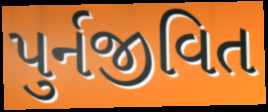
પુર્નજીવિત